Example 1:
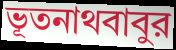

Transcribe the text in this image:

ভূতনাথবাবুর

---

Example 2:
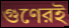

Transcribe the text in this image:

গুণেরই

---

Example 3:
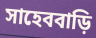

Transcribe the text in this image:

সাহেববাড়ি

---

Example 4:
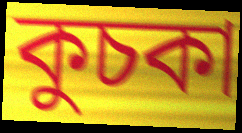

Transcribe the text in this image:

কুচকা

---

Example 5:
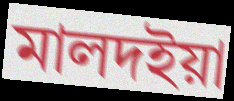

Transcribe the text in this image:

মালদইয়া